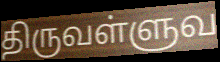
திருவள்ளுவ